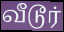
வீடூர்